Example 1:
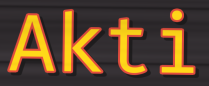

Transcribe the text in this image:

Akti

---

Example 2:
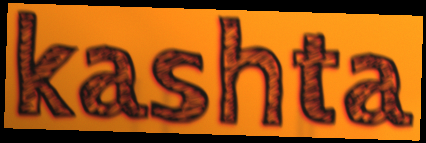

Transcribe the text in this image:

kashta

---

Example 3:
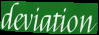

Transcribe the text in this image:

deviation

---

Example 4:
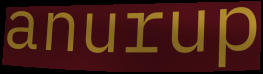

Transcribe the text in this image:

anurup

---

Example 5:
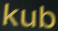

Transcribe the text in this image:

kub